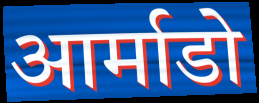
आर्माडो